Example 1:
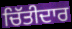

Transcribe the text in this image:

ਚਿੱਤੀਦਾਰ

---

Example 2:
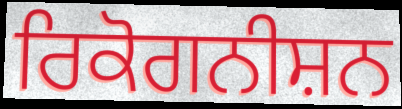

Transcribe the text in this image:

ਰਿਕੋਗਨੀਸ਼ਨ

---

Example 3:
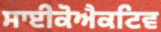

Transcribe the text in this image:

ਸਾਈਕੋਐਕਟਿਵ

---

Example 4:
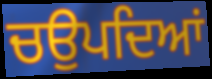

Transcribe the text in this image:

ਚਉਪਦਿਆਂ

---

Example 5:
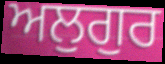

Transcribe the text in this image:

ਅਲੁਗੁਰ